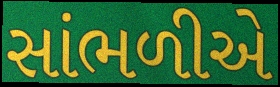
સાંભળીએ